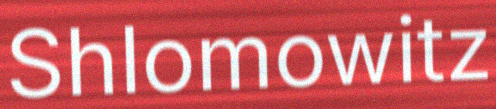
Shlomowitz